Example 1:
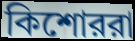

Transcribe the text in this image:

কিশোররা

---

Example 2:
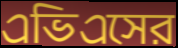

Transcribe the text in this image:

এভিএসের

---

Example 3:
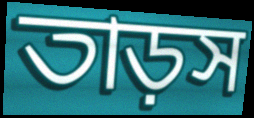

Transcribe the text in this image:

তাড়স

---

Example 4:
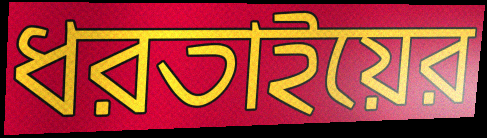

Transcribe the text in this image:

ধরতাইয়ের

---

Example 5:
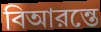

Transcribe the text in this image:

বিআরন্তে